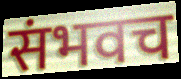
संभवच